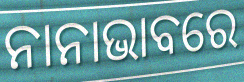
ନାନାଭାବରେ